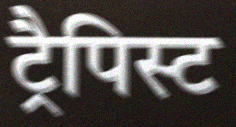
ट्रैपिस्ट